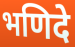
भणिदे